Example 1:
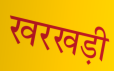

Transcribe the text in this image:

खरखड़ी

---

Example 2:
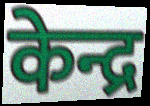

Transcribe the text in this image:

केन्द्र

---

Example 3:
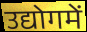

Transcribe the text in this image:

उद्योगमें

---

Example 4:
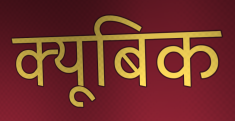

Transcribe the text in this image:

क्‍यूबिक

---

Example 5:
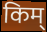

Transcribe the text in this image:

किम्